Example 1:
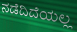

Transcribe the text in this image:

ನಡೆದಿದೆಯಲ್ಲ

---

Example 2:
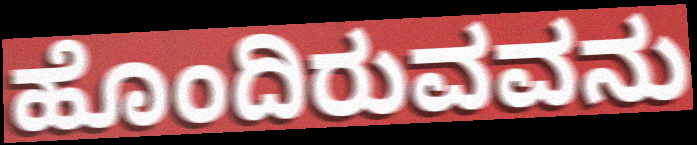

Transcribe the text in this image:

ಹೊಂದಿರುವವನು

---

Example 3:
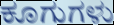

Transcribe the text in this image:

ಕೂಗುಗಳು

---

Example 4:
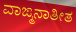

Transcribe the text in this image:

ವಾಙ್ಮನಾತೀತ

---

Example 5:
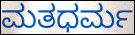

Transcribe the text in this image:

ಮತಧರ್ಮ